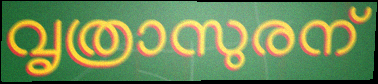
വൃത്രാസുരന്